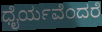
ಧೈರ್ಯವೆಂದರೆ